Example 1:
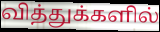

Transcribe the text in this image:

வித்துக்களில்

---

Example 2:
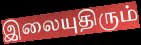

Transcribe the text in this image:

இலையுதிரும்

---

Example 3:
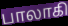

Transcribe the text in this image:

பாலாகி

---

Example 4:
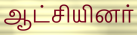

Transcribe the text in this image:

ஆட்சியினர்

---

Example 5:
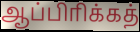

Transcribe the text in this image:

ஆப்பிரிக்கத்